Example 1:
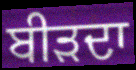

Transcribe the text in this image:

ਬੀੜਦਾ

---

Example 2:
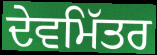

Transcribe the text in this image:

ਦੇਵਮਿੱਤਰ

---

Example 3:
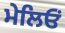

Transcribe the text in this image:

ਮੇਲਿਓਂ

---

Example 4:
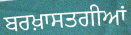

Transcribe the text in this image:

ਬਰਖ਼ਾਸਤਗੀਆਂ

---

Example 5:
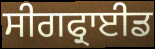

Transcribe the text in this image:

ਸੀਗਫ੍ਰਾਈਡ